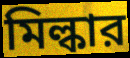
মিল্কার